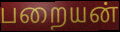
பறையன்